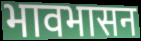
भावभासन